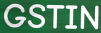
GSTIN